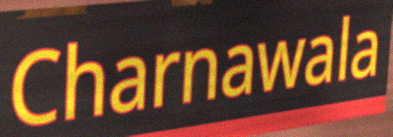
Charnawala